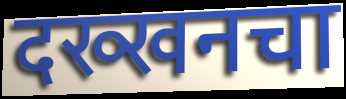
दख्खनचा